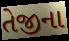
તેજીના